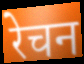
रेचन